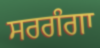
ਸਰਗੰਗਾ